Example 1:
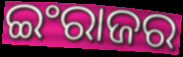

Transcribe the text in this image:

ଇଂରାଜର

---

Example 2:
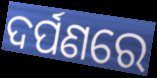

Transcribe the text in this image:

ଦର୍ପଣରେ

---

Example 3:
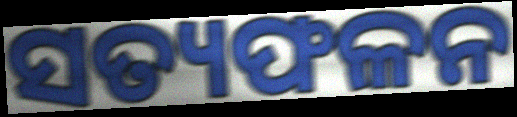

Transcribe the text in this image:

ସତ୍ୟଫଳନ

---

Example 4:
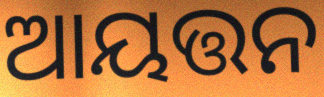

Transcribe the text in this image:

ଆୟତ୍ତନ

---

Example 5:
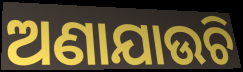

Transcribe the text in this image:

ଅଣାଯାଉଚି